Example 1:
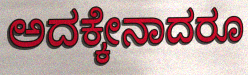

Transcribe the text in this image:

ಅದಕ್ಕೇನಾದರೂ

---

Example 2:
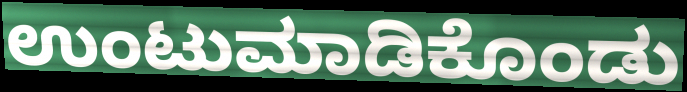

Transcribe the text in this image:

ಉಂಟುಮಾಡಿಕೊಂಡು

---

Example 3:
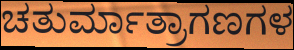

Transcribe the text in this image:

ಚತುರ್ಮಾತ್ರಾಗಣಗಳ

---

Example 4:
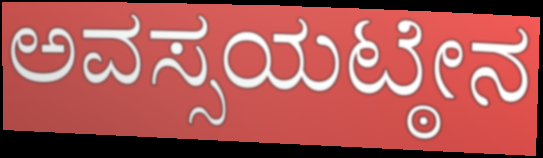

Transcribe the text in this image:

ಅವಸ್ಸಯಟ್ಠೇನ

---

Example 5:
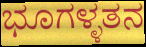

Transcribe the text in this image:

ಭೂಗಳ್ಳತನ